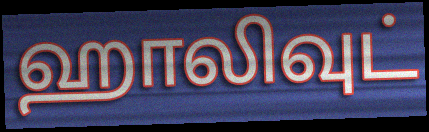
ஹாலிவுட்